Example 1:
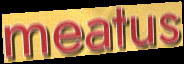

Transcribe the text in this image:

meatus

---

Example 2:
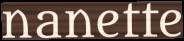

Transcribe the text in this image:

nanette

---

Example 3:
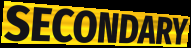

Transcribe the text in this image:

SECONDARY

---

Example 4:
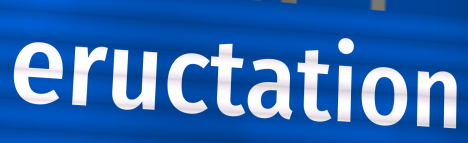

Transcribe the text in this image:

eructation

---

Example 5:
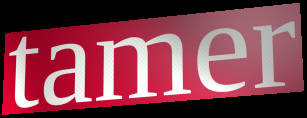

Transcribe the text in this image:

tamer